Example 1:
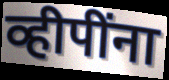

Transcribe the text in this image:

व्हीपींना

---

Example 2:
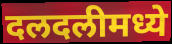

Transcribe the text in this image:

दलदलीमध्ये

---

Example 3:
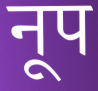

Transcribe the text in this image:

नूप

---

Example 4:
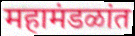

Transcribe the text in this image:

महामंडळांत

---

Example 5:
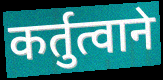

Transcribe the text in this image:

कर्तुत्वाने